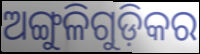
ଅଙ୍ଗୁଳିଗୁଡ଼ିକର